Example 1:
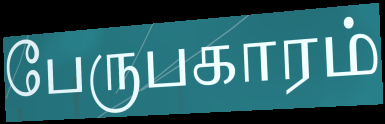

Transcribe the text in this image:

பேருபகாரம்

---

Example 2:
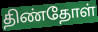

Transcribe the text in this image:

திண்தோள்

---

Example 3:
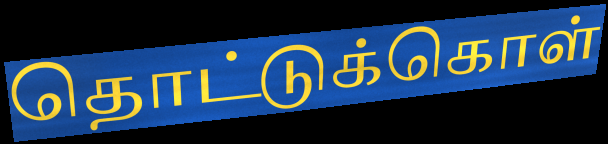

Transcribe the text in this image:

தொட்டுக்கொள்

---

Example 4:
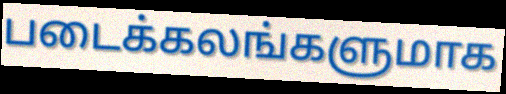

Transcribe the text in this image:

படைக்கலங்களுமாக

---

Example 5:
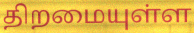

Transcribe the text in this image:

திறமையுள்ள